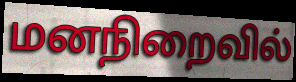
மனநிறைவில்